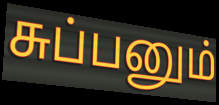
சுப்பனும்